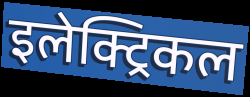
इलेक्ट्रिकल